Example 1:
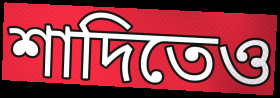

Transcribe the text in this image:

শাদিতেও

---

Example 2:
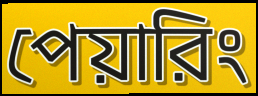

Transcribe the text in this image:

পেয়ারিং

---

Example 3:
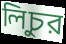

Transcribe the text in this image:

লিচুর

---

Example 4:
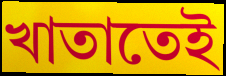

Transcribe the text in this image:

খাতাতেই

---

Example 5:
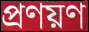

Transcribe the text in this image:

প্রণয়ণ